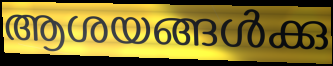
ആശയങ്ങൾക്കു